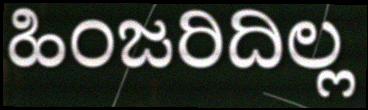
ಹಿಂಜರಿದಿಲ್ಲ